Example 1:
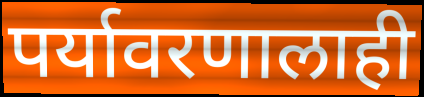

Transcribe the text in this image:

पर्यावरणालाही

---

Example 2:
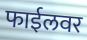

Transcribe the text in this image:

फाईलवर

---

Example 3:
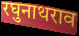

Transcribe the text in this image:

रघुनाथराव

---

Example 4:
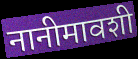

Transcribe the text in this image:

नानीमावशी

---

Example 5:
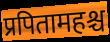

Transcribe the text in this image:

प्रपितामहश्च